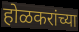
होळकरांच्या